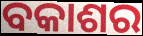
ବକାଶର